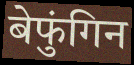
बेफुंगिन